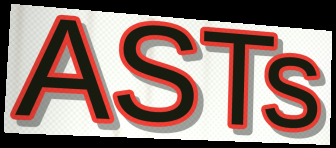
ASTs